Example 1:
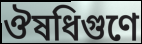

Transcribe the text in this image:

ঔষধিগুণে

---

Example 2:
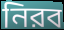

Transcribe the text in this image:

নিরব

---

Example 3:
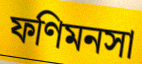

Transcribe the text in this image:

ফণিমনসা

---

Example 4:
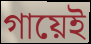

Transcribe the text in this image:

গায়েই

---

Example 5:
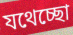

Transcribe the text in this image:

যথেচ্ছো